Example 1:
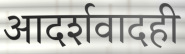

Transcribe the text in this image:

आदर्शवादही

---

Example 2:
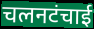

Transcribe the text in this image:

चलनटंचाई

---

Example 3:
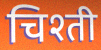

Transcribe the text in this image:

चिश्ती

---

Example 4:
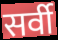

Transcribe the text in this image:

सर्वी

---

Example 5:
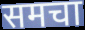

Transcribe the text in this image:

समचा